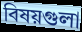
বিষয়গুলা